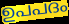
ഉപപദം